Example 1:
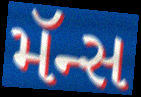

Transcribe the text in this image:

મૅન્સ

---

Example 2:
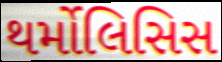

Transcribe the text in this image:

થર્મોલિસિસ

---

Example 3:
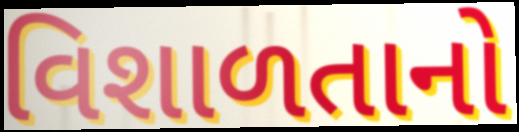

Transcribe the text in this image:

વિશાળતાનો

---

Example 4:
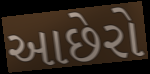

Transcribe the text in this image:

આછેરો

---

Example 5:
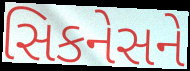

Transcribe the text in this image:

સિકનેસને